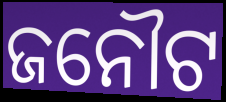
ଜନୌଟ